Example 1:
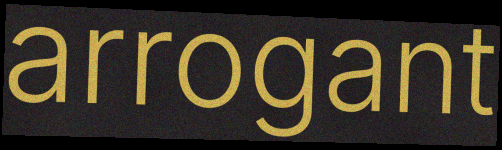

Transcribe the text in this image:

arrogant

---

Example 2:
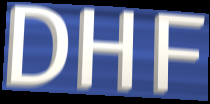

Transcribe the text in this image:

DHF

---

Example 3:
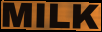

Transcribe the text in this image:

MILK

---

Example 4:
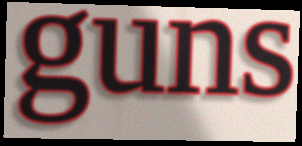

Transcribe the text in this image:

guns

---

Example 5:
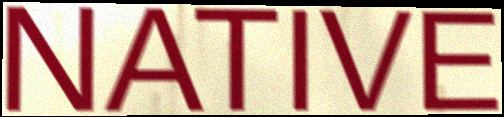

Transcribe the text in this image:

NATIVE